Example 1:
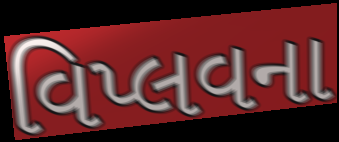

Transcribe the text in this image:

વિપ્લવના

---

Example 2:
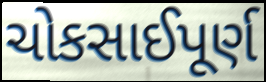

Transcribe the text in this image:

ચોકસાઈપૂર્ણ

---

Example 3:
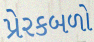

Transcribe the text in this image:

પ્રેરકબળો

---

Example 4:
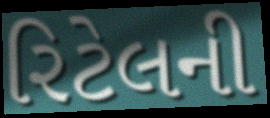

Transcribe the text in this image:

રિટેલની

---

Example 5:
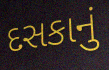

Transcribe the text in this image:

દસકાનું